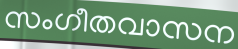
സംഗീതവാസന